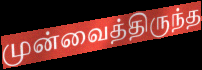
முன்வைத்திருந்த